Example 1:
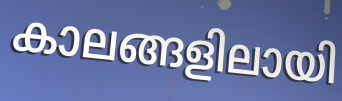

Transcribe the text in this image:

കാലങ്ങളിലായി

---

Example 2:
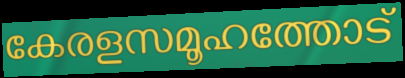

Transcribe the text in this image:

കേരളസമൂഹത്തോട്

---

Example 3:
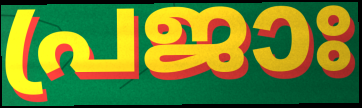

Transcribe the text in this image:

പ്രജാഃ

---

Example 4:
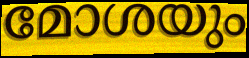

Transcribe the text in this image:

മോശയും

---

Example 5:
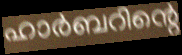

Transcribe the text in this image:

ഹാർബറിന്റെ